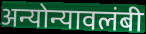
अन्योन्यावलंबी